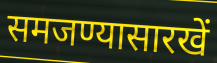
समजण्यासारखें